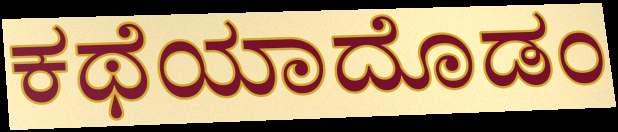
ಕಥೆಯಾದೊಡಂ